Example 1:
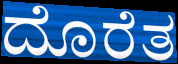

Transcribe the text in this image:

ದೊರೆತ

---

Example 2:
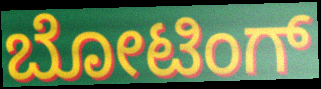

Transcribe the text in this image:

ಬೋಟಿಂಗ್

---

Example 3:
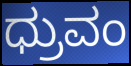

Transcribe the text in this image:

ಧ್ರುವಂ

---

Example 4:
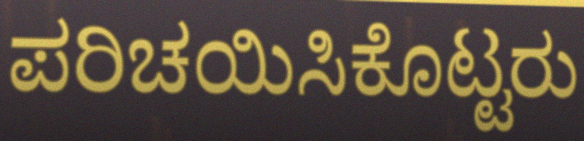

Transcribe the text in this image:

ಪರಿಚಯಿಸಿಕೊಟ್ಟರು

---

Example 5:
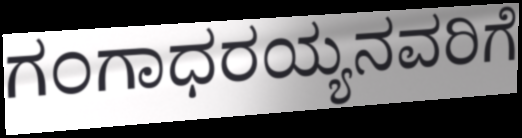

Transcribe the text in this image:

ಗಂಗಾಧರಯ್ಯನವರಿಗೆ